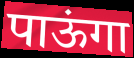
पाऊंगा